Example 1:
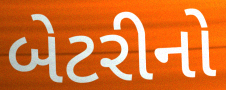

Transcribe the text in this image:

બેટરીનો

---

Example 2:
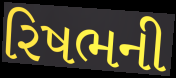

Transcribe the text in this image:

રિષભની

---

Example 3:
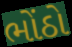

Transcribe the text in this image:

ભોંઠો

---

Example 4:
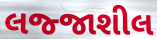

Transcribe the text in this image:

લજ્જાશીલ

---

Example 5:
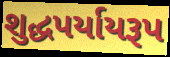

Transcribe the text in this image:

શુદ્ધપર્યાયરૂપ